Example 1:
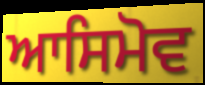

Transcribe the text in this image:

ਆਸਿਮੋਵ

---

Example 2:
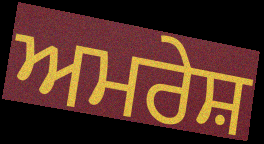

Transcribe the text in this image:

ਅਮਰੇਸ਼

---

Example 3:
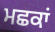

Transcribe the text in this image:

ਮਛਕਾਂ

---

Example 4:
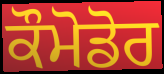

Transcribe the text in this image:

ਕੌਮੋਡੋਰ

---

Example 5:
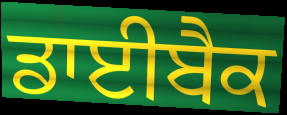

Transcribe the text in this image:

ਡਾਈਬੈਕ